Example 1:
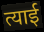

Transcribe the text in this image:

त्याई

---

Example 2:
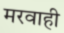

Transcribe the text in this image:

मरवाही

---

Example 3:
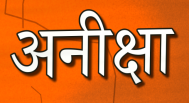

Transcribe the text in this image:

अनीक्षा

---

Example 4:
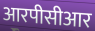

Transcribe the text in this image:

आरपीसीआर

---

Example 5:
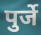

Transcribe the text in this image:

पुर्जे